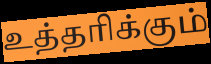
உத்தரிக்கும்